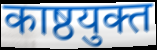
काष्ठयुक्त